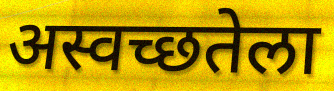
अस्वच्छतेला